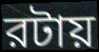
রটায়